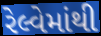
રેલ્વેમાંથી